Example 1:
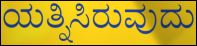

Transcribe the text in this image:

ಯತ್ನಿಸಿರುವುದು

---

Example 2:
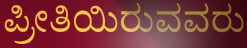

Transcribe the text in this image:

ಪ್ರೀತಿಯಿರುವವರು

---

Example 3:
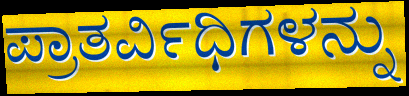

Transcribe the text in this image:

ಪ್ರಾತರ್ವಿಧಿಗಳನ್ನು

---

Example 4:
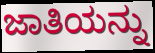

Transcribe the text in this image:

ಜಾತಿಯನ್ನು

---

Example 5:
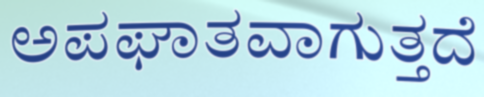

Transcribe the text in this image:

ಅಪಘಾತವಾಗುತ್ತದೆ